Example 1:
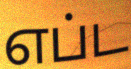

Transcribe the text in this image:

எப்ட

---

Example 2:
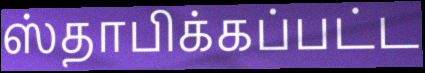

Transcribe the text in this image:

ஸ்தாபிக்கப்பட்ட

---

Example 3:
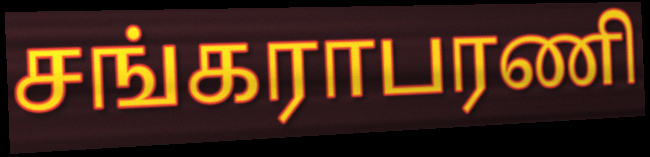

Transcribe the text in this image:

சங்கராபரணி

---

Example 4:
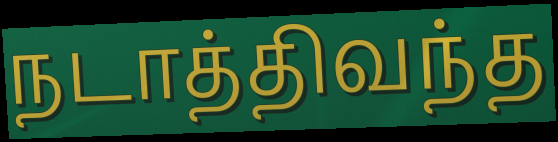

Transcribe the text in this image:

நடாத்திவந்த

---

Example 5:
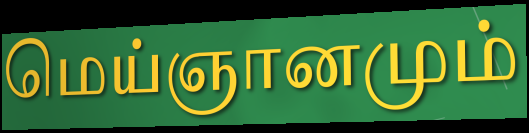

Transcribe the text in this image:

மெய்ஞானமும்